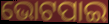
ଭୋଟପାଇ